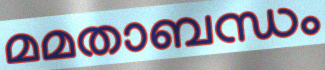
മമതാബന്ധം